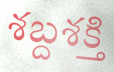
శబ్దశక్తి